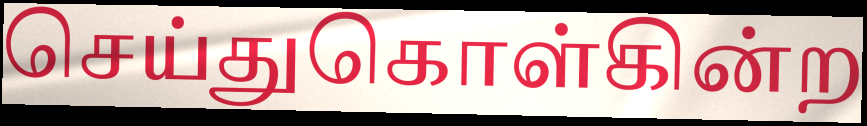
செய்துகொள்கின்ற